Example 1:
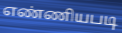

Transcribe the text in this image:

எண்ணியபடி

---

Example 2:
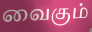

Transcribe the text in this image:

வைகும்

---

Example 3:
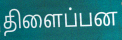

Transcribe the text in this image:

திளைப்பன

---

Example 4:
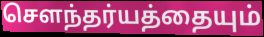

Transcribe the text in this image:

சௌந்தர்யத்தையும்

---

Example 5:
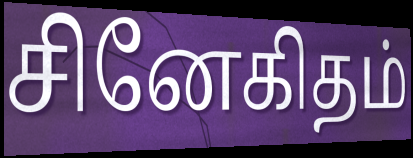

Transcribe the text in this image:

சினேகிதம்